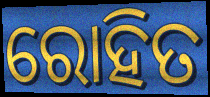
ରୋହିତ